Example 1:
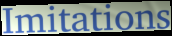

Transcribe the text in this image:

Imitations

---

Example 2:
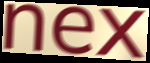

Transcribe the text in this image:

nex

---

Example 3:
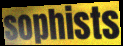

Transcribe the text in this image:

sophists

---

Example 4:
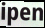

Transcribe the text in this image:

ipen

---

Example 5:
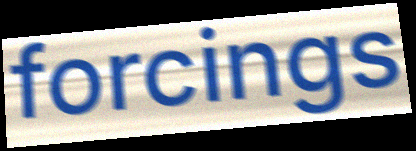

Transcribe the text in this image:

forcings